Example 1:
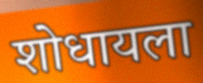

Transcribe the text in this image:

शोधायला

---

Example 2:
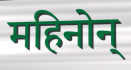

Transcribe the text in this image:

महिनोन्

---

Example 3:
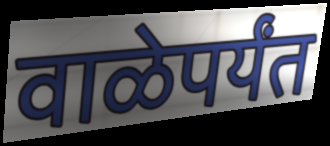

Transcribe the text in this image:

वाळेपर्यंत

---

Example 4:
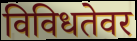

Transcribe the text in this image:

विविधतेवर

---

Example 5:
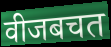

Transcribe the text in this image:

वीजबचत